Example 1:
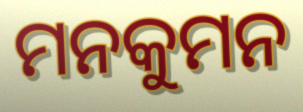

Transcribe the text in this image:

ମନକୁମନ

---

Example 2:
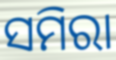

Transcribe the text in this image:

ସମିରା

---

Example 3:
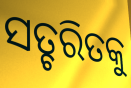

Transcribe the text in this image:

ସତ୍ଚରିତକୁ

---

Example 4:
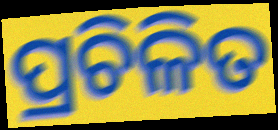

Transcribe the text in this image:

ପ୍ରଚିଳିତ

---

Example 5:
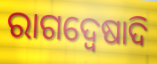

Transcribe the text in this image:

ରାଗଦ୍ୱେଷାଦି